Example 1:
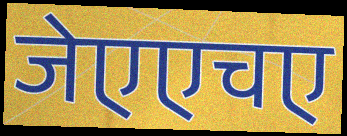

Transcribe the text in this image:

जेएएचए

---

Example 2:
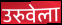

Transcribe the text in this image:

उरुवेला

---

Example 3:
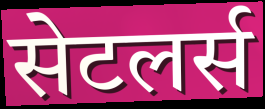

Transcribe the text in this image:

सेटलर्स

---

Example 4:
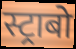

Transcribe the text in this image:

स्ट्राबो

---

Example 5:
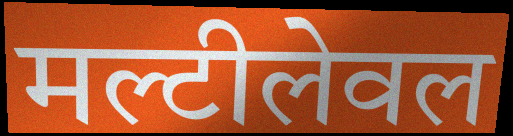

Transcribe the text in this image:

मल्टीलेवल